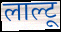
लाल्टू